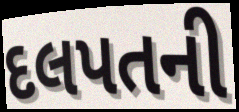
દલપતની